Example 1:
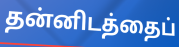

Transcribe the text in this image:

தன்னிடத்தைப்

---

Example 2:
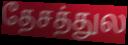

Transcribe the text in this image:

தேசத்துல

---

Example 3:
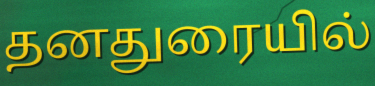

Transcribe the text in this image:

தனதுரையில்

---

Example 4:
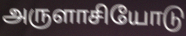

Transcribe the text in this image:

அருளாசியோடு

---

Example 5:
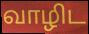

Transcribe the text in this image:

வாழிட